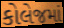
કોલેજમાં